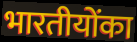
भारतीयोंका